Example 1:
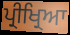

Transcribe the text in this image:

ਪ੍ਰੀਖ੍ਰਿਆ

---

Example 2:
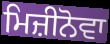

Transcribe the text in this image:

ਮਿਜ਼ੀਨੋਵਾ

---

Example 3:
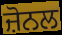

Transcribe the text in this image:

ਜ਼ੋਨਲ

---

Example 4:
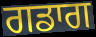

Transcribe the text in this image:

ਗਡਾਗ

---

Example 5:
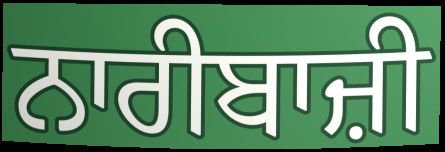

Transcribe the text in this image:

ਨਾਰੀਬਾਜ਼ੀ